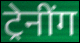
ट्रेनींग